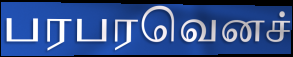
பரபரவெனச்